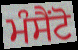
ਮੰਸੈਂਟੋ